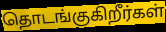
தொடங்குகிறீர்கள்